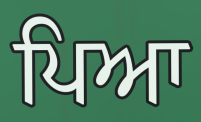
ਪਿਆ